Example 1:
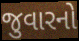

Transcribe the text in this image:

જુવારનો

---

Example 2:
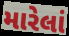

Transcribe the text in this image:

મારેલાં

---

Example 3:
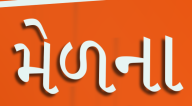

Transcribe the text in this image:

મેળના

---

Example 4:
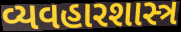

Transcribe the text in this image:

વ્યવહારશાસ્ત્ર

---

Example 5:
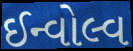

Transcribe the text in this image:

ઈન્વોલ્વ